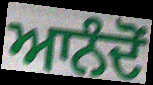
ਆਨੰਦੋਂ